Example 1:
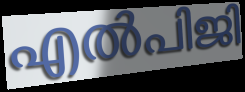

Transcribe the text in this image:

എൽപിജി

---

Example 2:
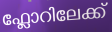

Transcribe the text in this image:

ഫ്ലോറിലേക്ക്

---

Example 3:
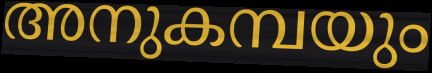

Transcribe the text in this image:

അനുകമ്പയും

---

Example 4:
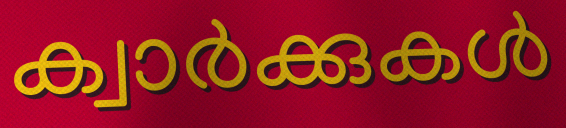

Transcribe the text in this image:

ക്വാർക്കുകൾ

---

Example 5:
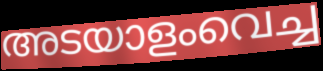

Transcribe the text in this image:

അടയാളംവെച്ച